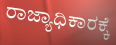
ರಾಜ್ಯಾಧಿಕಾರಕ್ಕೆ